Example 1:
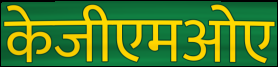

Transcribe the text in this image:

केजीएमओए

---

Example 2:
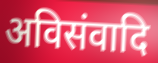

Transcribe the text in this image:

अविसंवादि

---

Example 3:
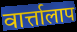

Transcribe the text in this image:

वार्त्तालाप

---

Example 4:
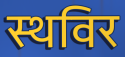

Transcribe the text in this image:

स्थविर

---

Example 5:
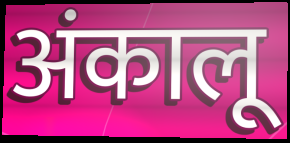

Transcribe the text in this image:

अंकालू